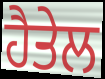
ਹੈਤੇਲ